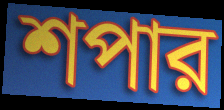
শপার